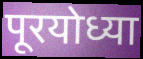
पूरयोध्या